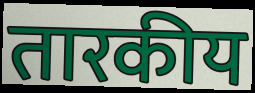
तारकीय